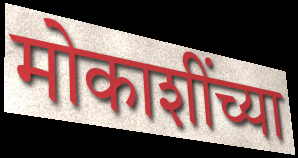
मोकाशींच्या